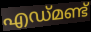
എഡ്മണ്ട്